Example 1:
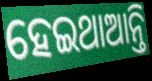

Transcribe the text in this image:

ହେଇଥାଆନ୍ତି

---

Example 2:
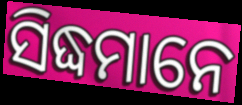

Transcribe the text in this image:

ସିଦ୍ଧମାନେ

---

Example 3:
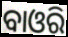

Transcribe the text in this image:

ବାଓରି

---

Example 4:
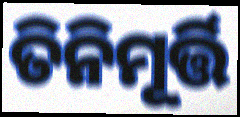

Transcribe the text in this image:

ତିନିମୂର୍ତ୍ତି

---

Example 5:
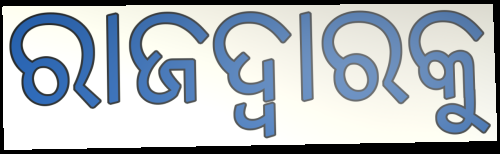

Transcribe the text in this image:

ରାଜଦ୍ୱାରକୁ